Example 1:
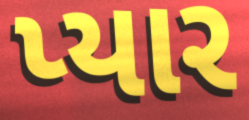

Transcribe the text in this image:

પ્યાર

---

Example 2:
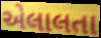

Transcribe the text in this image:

એલાલતા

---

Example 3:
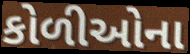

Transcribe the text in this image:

કોળીઓના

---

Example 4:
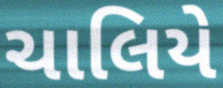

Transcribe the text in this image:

ચાલિયે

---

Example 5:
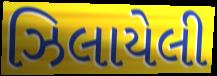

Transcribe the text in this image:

ઝિલાયેલી